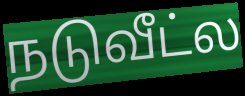
நடுவீட்ல